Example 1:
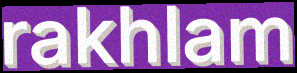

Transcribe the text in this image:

rakhlam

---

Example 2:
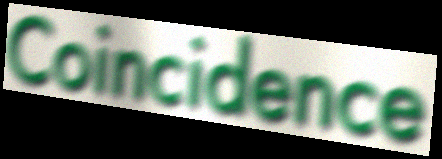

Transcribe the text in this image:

Coincidence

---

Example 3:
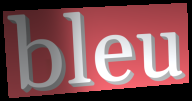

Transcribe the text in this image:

bleu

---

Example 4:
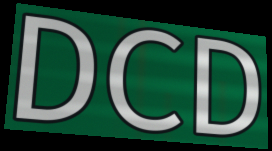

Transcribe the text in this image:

DCD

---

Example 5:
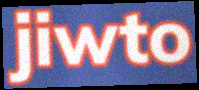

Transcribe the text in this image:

jiwto